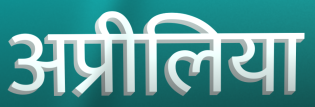
अप्रीलिया